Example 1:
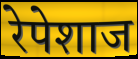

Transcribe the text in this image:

रेपेशाज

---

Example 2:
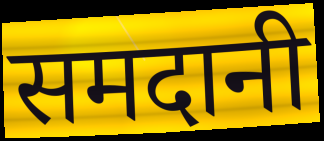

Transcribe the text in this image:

समदानी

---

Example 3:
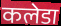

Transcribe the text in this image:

कलेडा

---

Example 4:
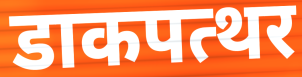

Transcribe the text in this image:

डाकपत्थर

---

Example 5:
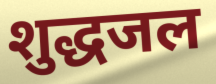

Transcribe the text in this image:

शुद्धजल